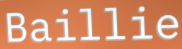
Baillie